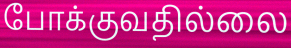
போக்குவதில்லை